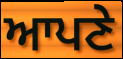
ਆਪਣੇ